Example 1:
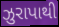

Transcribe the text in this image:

ઝુરાપાથી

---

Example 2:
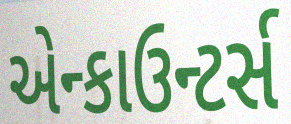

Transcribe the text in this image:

એન્કાઉન્ટર્સ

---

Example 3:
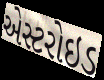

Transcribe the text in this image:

એસ્ટરોઇડ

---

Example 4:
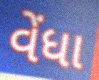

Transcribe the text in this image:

વેંધા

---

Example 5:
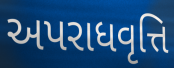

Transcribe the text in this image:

અપરાધવૃત્તિ